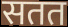
सतत